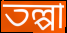
তল্পা